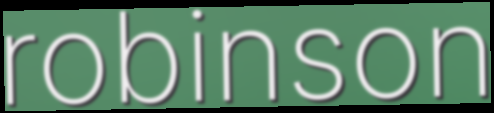
robinson